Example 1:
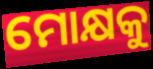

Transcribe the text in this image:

ମୋକ୍ଷକୁ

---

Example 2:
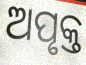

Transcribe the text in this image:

ଅପୃକ୍ତ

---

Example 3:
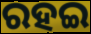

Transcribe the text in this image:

ରହଇ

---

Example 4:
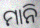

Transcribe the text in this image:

ମାନି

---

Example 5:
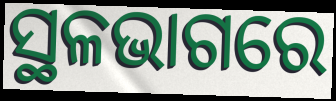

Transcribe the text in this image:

ସ୍ଥଳଭାଗରେ